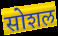
सोशल